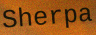
Sherpa